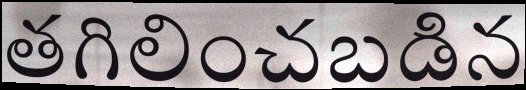
తగిలించబడిన